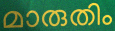
മാരുതിം